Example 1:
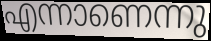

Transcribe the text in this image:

എന്നാണെന്നു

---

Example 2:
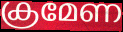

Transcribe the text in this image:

ക്രമേണ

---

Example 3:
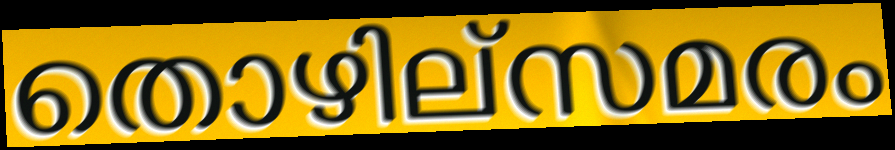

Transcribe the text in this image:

തൊഴില്സമരം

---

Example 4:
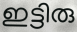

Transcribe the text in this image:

ഇട്ടിരു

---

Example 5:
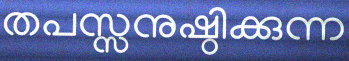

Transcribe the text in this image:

തപസ്സനുഷ്ഠിക്കുന്ന